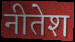
नीतेश